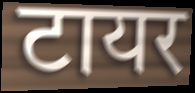
टायर